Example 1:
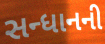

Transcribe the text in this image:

સન્ધાનની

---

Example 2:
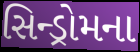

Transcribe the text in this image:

સિન્ડ્રોમના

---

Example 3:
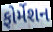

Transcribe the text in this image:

ફોર્મેશન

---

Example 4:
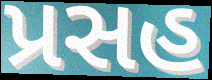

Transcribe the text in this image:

પ્રસહ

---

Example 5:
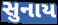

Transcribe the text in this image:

સુનાય